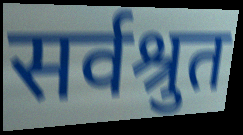
सर्वश्रुत